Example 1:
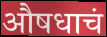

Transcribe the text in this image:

औषधाचं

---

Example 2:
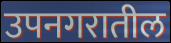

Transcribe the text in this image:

उपनगरातील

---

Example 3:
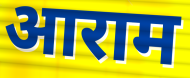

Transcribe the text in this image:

आराम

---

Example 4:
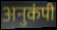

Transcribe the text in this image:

अनुकंपी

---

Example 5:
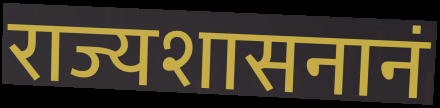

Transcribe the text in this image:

राज्यशासनानं